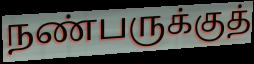
நண்பருக்குத்